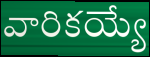
వారికయ్యే